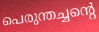
പെരുന്തച്ചന്റെ